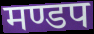
मण्‍डप